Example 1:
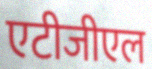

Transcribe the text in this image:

एटीजीएल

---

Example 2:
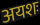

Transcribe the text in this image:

अयशः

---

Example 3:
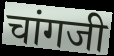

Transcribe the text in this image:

चांगजी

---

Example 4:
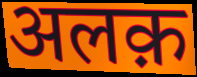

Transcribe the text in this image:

अलक़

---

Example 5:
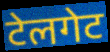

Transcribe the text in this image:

टेलगेट